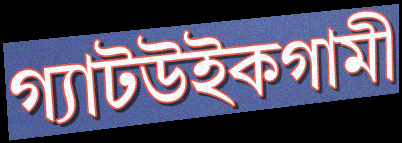
গ্যাটউইকগামী